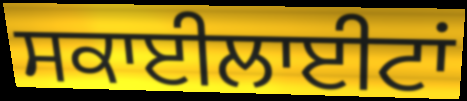
ਸਕਾਈਲਾਈਟਾਂ